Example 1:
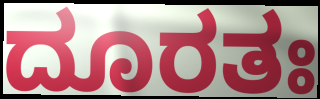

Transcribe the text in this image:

ದೂರತಃ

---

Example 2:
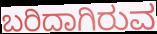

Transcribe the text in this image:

ಬರಿದಾಗಿರುವ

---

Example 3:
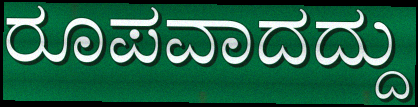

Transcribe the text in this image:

ರೂಪವಾದದ್ದು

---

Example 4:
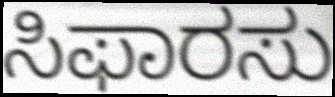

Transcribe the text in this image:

ಸಿಫಾರಸು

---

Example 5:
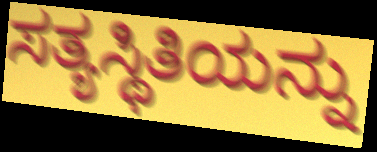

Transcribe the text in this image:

ಸತ್ಯಸ್ಥಿತಿಯನ್ನು